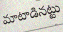
మాటాడినట్టు